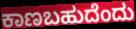
ಕಾಣಬಹುದೆಂದು